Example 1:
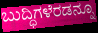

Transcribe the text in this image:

ಬುದ್ಧಿಗಳೆರಡನ್ನೂ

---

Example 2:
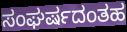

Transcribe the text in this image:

ಸಂಘರ್ಷದಂತಹ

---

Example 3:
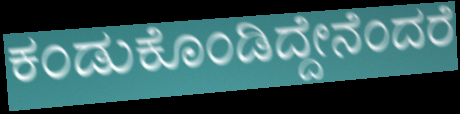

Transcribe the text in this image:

ಕಂಡುಕೊಂಡಿದ್ದೇನೆಂದರೆ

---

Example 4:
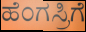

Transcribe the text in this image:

ಹೆಂಗಸ್ರಿಗೆ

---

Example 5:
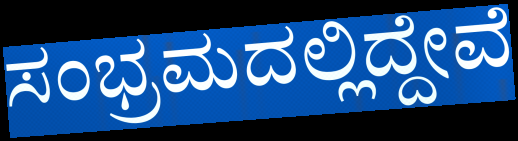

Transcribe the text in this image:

ಸಂಭ್ರಮದಲ್ಲಿದ್ದೇವೆ